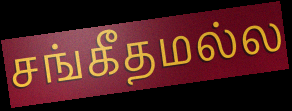
சங்கீதமல்ல